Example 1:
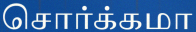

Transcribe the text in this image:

சொர்க்கமா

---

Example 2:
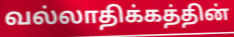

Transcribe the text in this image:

வல்லாதிக்கத்தின்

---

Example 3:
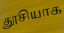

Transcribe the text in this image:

தூசியாக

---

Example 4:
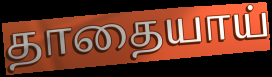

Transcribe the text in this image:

தாதையாய்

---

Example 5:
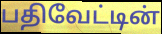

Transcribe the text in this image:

பதிவேட்டின்